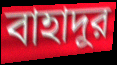
বাহাদূর